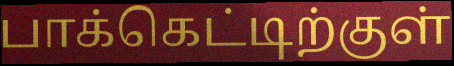
பாக்கெட்டிற்குள்